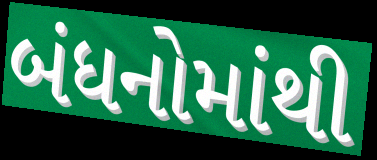
બંધનોમાંથી